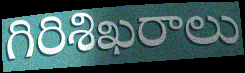
గిరిశిఖరాలు